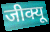
जीक्यू